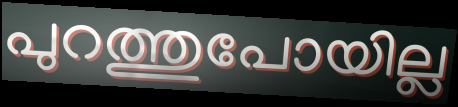
പുറത്തുപോയില്ല